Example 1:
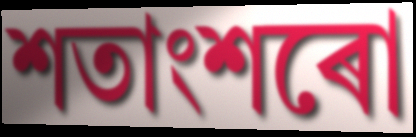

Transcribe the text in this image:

শতাংশৰো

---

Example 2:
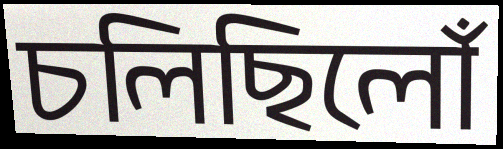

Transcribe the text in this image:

চলিছিলোঁ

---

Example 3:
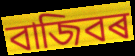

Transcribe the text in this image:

বাজিবৰ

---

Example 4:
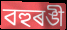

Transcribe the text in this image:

বহুৰঙী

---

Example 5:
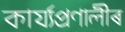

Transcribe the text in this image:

কাৰ্য্যপ্ৰণালীৰ